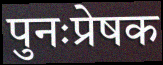
पुनःप्रेषक